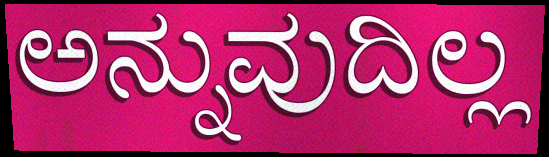
ಅನ್ನುವುದಿಲ್ಲ